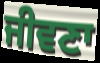
ਜੀਵਣਾ